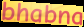
bhabna